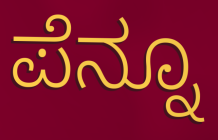
ಪೆನ್ನೂ